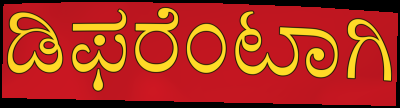
ಡಿಫರೆಂಟಾಗಿ